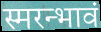
स्मरन्भावं